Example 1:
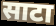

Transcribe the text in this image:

साटा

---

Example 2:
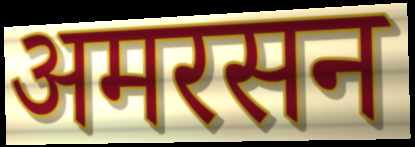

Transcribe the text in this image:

अमरसन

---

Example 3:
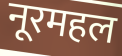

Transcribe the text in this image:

नूरमहल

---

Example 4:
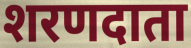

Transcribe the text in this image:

शरणदाता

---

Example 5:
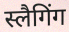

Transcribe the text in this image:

स्लैगिंग